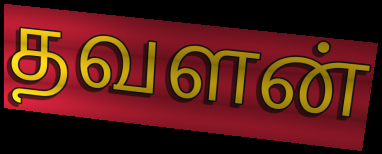
தவளன்